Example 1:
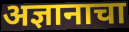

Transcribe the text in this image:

अज्ञानाचा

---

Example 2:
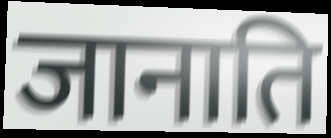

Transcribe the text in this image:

जानाति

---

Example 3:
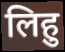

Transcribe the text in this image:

लिहु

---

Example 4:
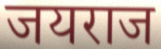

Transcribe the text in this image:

जयराज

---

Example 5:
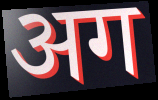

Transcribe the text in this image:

अग